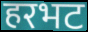
हरभट